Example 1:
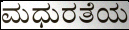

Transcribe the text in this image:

ಮಧುರತೆಯ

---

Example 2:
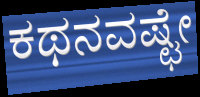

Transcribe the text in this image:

ಕಥನವಷ್ಟೇ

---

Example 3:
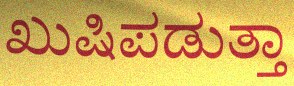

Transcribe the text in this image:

ಖುಷಿಪಡುತ್ತಾ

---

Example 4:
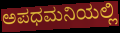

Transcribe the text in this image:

ಅಪಧಮನಿಯಲ್ಲಿ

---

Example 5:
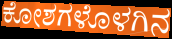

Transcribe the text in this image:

ಕೋಶಗಳೊಳಗಿನ